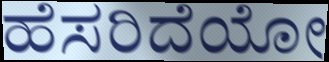
ಹೆಸರಿದೆಯೋ